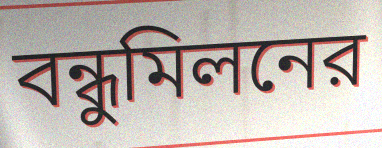
বন্ধুমিলনের